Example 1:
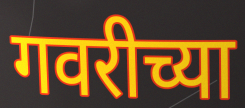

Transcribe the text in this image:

गवरीच्या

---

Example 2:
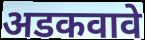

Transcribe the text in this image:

अडकवावे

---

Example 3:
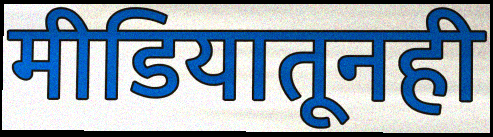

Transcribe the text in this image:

मीडियातूनही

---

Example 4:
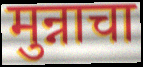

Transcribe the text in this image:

मुन्नाचा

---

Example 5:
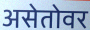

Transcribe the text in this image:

असेतोवर